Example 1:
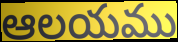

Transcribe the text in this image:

ఆలయము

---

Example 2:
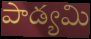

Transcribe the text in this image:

పాడ్యమి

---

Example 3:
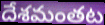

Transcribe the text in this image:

దేశమంతట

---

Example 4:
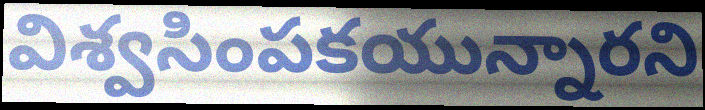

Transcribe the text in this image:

విశ్వసింపకయున్నారని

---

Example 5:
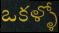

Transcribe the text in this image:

ఒకళ్ళో